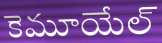
కెమూయేల్